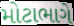
મોટાભાગે